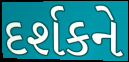
દર્શકને